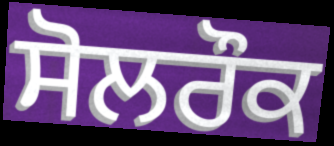
ਸੋਲਰੌਕ